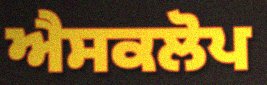
ਐਸਕਲੋਪ